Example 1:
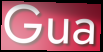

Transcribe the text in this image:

Gua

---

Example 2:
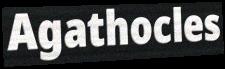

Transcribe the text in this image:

Agathocles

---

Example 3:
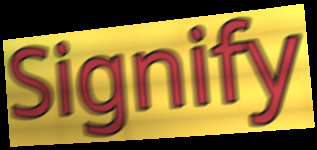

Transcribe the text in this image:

Signify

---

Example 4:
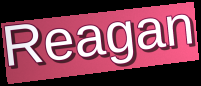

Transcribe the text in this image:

Reagan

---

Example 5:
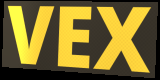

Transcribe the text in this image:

VEX